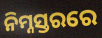
ନିମ୍ନସ୍ତରରେ